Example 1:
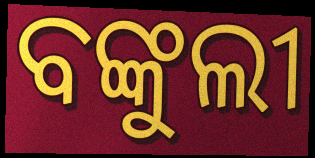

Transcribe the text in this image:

ବଙ୍କୁଲୀ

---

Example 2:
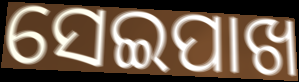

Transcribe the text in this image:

ସେଇପାଖ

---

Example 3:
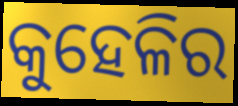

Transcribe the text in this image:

କୁହେଳିର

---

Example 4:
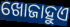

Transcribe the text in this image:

ଖୋଜାହୁଏ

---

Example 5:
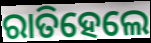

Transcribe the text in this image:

ରାତିହେଲେ